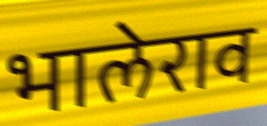
भालेराव